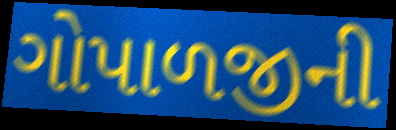
ગોપાળજીની